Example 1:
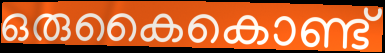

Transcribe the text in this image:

ഒരുകൈകൊണ്ട്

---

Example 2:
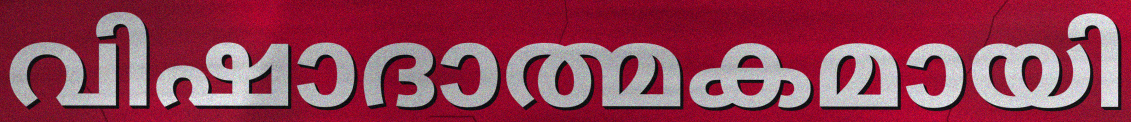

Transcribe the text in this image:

വിഷാദാത്മകമായി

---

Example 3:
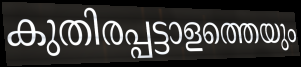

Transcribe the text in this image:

കുതിരപ്പട്ടാളത്തെയും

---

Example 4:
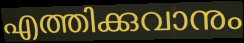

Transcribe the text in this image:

എത്തിക്കുവാനും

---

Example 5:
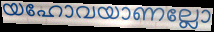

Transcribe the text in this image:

യഹോവയാണല്ലോ